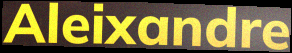
Aleixandre